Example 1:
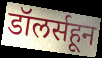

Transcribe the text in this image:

डॉलर्सहून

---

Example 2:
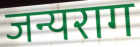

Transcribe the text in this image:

जन्यराग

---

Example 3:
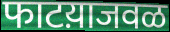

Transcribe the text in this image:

फाटय़ाजवळ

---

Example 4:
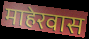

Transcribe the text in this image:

माहेरवास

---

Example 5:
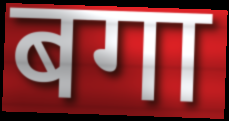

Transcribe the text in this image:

बगा